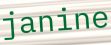
janine